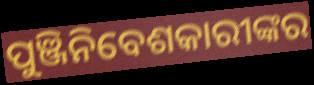
ପୁଞ୍ଜିନିବେଶକାରୀଙ୍କର